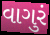
વાગુરં